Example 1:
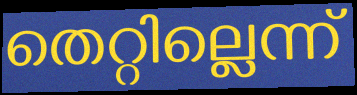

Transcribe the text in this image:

തെറ്റില്ലെന്ന്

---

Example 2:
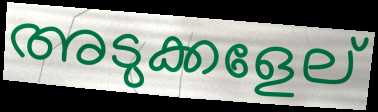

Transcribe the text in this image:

അടുക്കളേല്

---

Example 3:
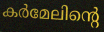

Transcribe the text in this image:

കർമേലിന്റെ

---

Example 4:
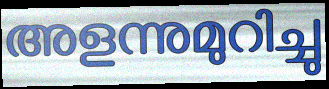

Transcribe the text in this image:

അളന്നുമുറിച്ചു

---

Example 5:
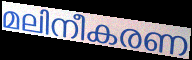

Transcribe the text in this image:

മലിനീകരണ